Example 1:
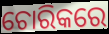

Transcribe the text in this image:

ଚୋରିକରେ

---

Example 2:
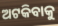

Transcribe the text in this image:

ଅଟକିବାକୁ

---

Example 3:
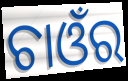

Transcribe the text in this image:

ଚାଓଁର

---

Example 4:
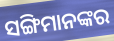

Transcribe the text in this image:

ସଙ୍ଗିମାନଙ୍କର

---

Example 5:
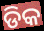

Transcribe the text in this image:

ଡିକ